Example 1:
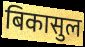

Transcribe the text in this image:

बिकासुल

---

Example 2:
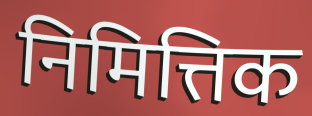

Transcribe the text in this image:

निमित्तिक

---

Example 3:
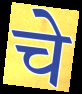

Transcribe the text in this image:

चे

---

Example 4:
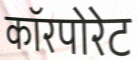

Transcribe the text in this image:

कॉरपोरेट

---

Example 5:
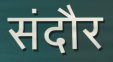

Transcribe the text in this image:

संदौर